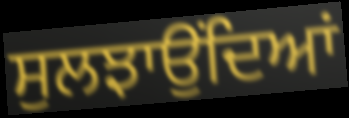
ਸੁਲਝਾਉਂਦਿਆਂ